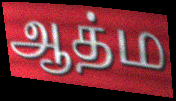
ஆத்ம